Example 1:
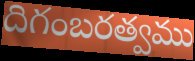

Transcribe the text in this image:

దిగంబరత్వము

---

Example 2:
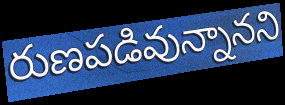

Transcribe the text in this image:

రుణపడివున్నానని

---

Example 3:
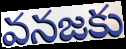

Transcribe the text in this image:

వనజకు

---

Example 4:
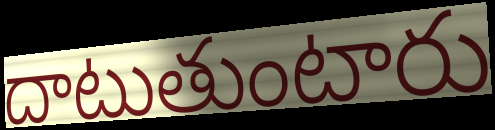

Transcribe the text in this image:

దాటుతుంటారు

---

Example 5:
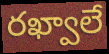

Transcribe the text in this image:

రఖ్వాలే